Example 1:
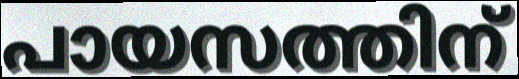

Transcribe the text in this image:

പായസത്തിന്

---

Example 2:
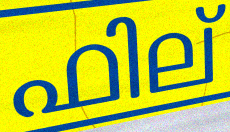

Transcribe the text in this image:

ഫില്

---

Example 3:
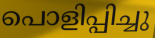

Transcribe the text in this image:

പൊളിപ്പിച്ചു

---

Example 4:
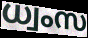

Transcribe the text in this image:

ധ്വംസ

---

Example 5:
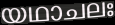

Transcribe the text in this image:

യഥാചലഃ